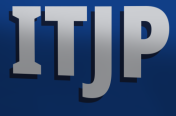
ITJP